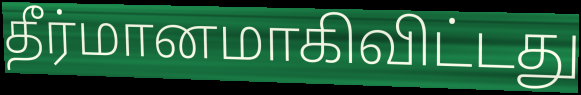
தீர்மானமாகிவிட்டது